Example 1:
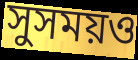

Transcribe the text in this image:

সুসময়ও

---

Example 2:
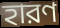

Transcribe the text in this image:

হারণ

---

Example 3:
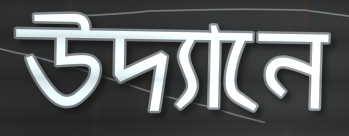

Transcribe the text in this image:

উদ্যানে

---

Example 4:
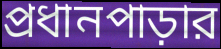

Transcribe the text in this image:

প্রধানপাড়ার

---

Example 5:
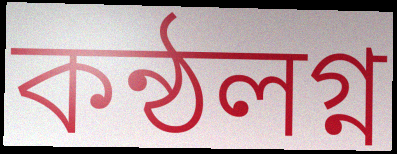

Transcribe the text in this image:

কন্ঠলগ্ন